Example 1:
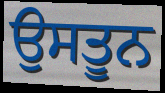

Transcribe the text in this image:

ਉਸਤੂਨ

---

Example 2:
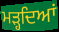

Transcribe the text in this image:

ਮੜ੍ਹਦਿਆਂ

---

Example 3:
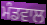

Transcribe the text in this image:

ਮੰਡਵਾਲ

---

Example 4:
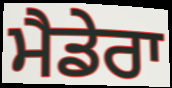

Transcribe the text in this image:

ਮੈਡੇਰਾ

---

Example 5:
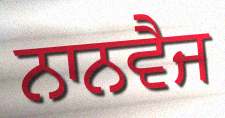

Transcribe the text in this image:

ਨਾਨਵੈਜ